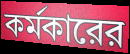
কর্মকারের